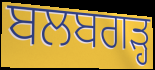
ਬਲਬਗੜ੍ਹ